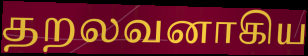
தறலவனாகிய